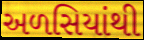
અળસિયાંથી